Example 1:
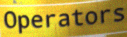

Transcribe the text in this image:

Operators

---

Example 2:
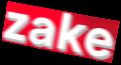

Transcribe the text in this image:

zake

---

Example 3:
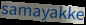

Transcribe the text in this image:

samayakke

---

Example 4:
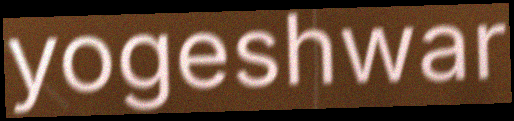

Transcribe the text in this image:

yogeshwar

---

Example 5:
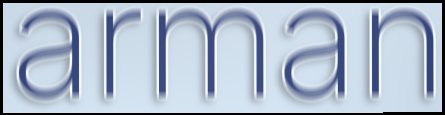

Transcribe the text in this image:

arman